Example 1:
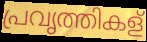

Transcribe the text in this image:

പ്രവൃത്തികള്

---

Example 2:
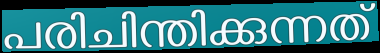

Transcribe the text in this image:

പരിചിന്തിക്കുന്നത്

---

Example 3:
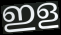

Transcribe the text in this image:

ഇള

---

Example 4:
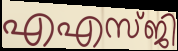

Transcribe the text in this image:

എഎസ്ജി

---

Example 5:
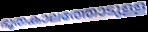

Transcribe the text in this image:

ഭൂതകാലത്തോടുള്ള